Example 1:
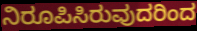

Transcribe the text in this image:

ನಿರೂಪಿಸಿರುವುದರಿಂದ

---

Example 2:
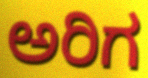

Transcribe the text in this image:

ಅರಿಗ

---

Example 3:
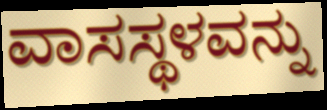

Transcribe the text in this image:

ವಾಸಸ್ಥಳವನ್ನು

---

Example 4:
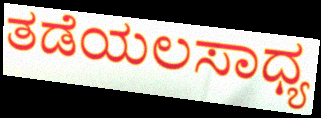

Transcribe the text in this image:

ತಡೆಯಲಸಾಧ್ಯ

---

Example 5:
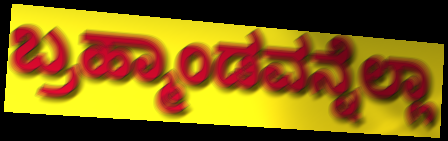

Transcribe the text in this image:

ಬ್ರಹ್ಮಾಂಡವನ್ನೆಲ್ಲಾ